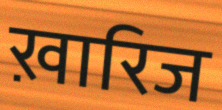
ख़ारिज